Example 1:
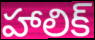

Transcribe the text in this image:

హాలిక్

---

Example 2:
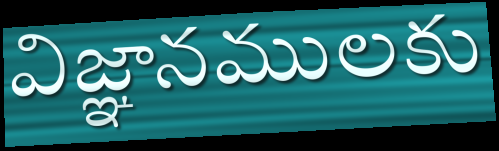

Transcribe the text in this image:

విజ్ఞానములకు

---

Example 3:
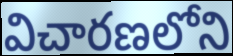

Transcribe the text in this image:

విచారణలోని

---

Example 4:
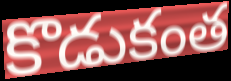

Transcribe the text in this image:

కొడుకంత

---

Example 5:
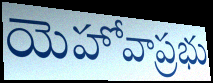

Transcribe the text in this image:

యెహోవాప్రభు